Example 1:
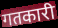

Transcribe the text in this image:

गतकारी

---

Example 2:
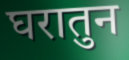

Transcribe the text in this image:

घरातुन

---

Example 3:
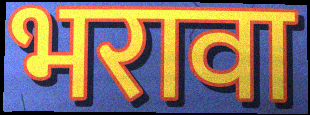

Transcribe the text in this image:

भरावा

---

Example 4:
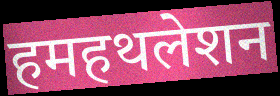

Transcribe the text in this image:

हमहथलेशन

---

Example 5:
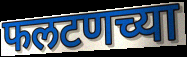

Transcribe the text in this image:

फलटणच्या